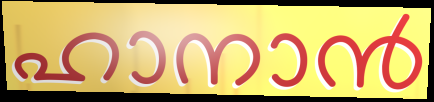
ഹാനാൻ